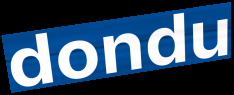
dondu